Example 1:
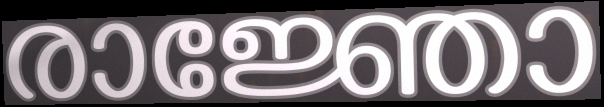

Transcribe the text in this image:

രാജ്ഞോ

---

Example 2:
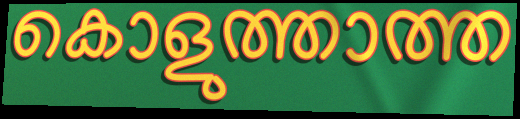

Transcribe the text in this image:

കൊളുത്താത്ത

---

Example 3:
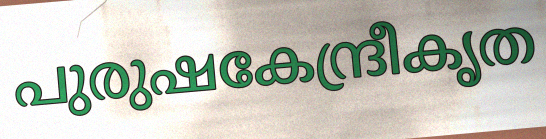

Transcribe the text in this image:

പുരുഷകേന്ദ്രീകൃത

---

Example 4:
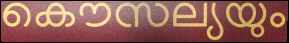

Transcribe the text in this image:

കൌസല്യയും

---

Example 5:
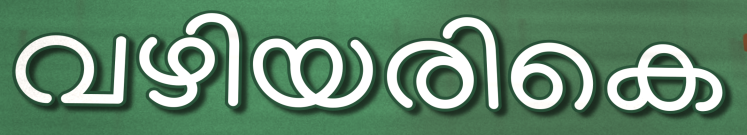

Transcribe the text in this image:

വഴിയരികെ